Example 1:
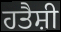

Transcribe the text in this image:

ਹਤੈਸ਼ੀ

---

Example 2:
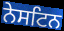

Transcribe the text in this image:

ਨੇਸਟਿਨ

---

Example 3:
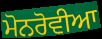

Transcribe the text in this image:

ਮੋਨਰੋਵੀਆ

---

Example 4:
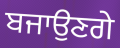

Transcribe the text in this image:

ਬਜਾਉਣਗੇ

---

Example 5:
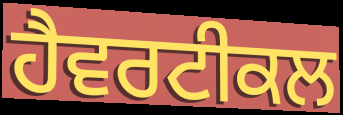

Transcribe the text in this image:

ਹੈਵਰਟੀਕਲ